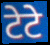
टेटे